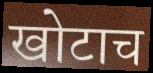
खोटाच